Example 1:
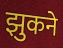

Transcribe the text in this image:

झुकने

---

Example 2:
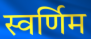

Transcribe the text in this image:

स्वर्णिम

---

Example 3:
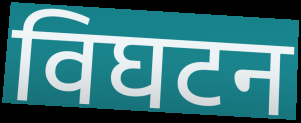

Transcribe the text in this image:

विघटन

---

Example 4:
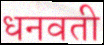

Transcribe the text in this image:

धनवती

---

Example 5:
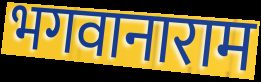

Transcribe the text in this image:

भगवानाराम